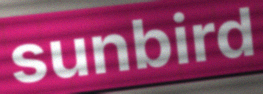
sunbird